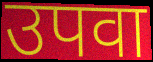
उपवा